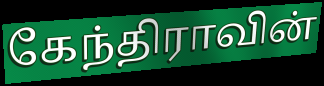
கேந்திராவின்